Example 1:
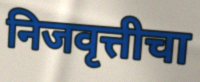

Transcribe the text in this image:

निजवृत्तीचा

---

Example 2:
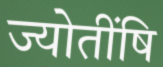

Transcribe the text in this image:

ज्योतींषि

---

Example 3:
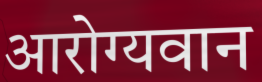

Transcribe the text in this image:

आरोग्यवान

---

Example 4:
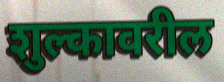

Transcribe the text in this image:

शुल्कावरील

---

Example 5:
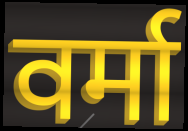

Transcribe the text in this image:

वर्मा